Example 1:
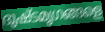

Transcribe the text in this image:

ദുഷ്ടമൃഗങ്ങളെ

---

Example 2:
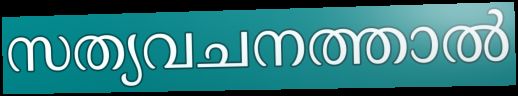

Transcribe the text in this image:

സത്യവചനത്താൽ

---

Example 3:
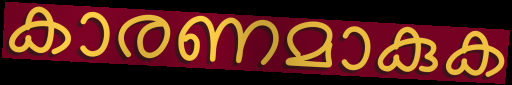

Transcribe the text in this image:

കാരണമാകുക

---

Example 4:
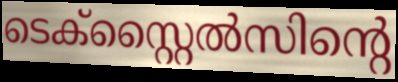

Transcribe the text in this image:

ടെക്സ്റ്റൈൽസിന്റെ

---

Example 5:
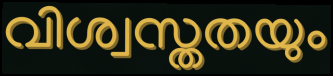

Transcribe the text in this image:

വിശ്വസ്തതയും